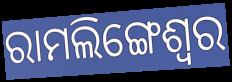
ରାମଲିଙ୍ଗେଶ୍ୱର